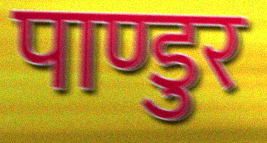
पाण्डुर